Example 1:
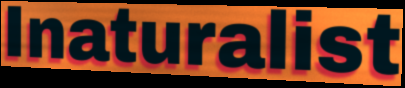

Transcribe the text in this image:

Inaturalist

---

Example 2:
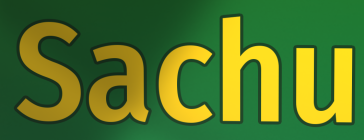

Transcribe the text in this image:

Sachu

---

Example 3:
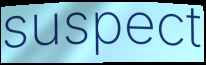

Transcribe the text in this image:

suspect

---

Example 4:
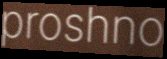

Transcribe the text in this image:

proshno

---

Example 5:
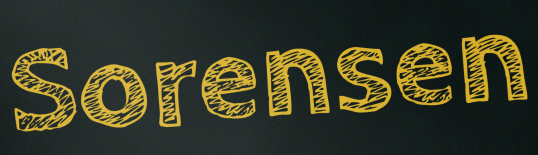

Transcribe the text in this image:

Sorensen